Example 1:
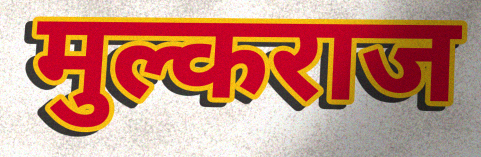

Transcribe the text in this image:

मुल्कराज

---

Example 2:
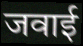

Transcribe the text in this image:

जवाई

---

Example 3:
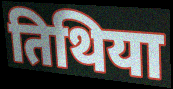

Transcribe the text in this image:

तिथिया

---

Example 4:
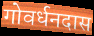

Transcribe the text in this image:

गोवर्धनदास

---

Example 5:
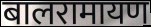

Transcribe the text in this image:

बालरामायण